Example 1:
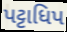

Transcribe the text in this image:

પટ્ટાધિપ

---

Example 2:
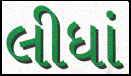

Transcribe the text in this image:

લીધાં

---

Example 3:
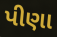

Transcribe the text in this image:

પીણા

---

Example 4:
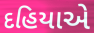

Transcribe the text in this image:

દહિયાએ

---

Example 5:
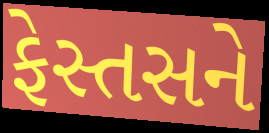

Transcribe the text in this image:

ફેસ્તસને